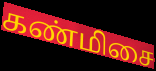
கண்மிசை